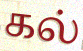
கல்